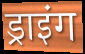
ड्राइंग